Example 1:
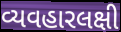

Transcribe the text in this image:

વ્યવહારલક્ષી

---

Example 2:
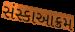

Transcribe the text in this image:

સંસ્કાઆક્રમ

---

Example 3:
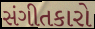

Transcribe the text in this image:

સંગીતકારો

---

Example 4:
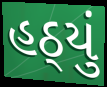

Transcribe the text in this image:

હઠ્યું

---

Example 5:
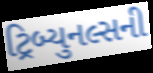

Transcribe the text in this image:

ટ્રિબ્યુનલ્સની